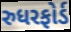
રુધરફોર્ડ